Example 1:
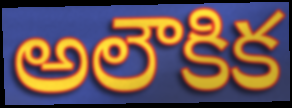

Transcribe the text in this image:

అలౌకిక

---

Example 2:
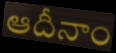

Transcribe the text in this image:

ఆదీనాం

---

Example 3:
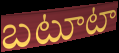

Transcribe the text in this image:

బటూటా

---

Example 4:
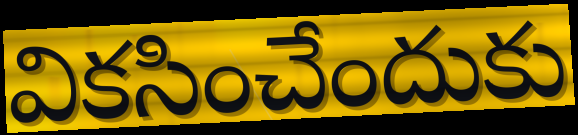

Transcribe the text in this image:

వికసించేందుకు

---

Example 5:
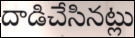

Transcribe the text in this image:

దాడిచేసినట్లు